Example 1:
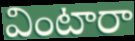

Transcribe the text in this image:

వింటారా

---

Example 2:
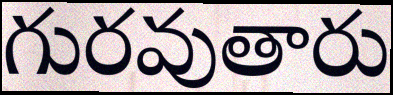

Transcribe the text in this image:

గురవుతారు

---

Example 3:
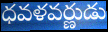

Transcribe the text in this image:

ధవళవర్ణుడు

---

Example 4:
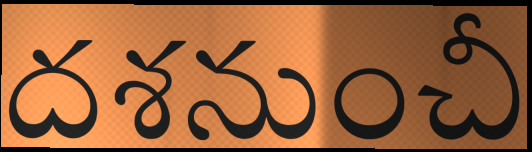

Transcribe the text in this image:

దశనుంచీ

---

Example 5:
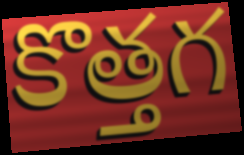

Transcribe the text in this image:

కొత్తగ